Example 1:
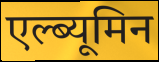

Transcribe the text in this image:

एल्ब्यूमिन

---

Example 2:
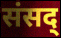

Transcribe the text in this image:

संसद्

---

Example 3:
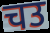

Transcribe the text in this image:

चउ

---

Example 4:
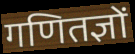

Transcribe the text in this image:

गणितज्ञों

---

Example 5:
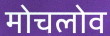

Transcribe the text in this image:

मोचलोव